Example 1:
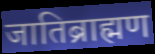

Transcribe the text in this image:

जातिब्राह्मण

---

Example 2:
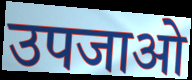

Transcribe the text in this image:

उपजाओ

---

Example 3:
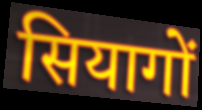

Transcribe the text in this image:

सियागों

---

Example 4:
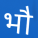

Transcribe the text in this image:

भौ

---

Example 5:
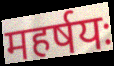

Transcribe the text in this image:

महर्षयः